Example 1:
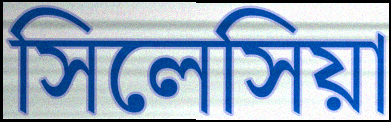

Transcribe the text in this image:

সিলেসিয়া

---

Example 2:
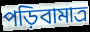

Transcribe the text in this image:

পড়িবামাত্র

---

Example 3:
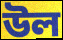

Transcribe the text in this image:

উল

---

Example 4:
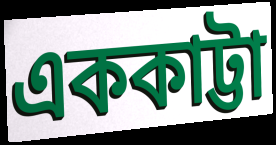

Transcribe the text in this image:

এককাট্টা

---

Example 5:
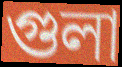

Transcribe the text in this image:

গুলা